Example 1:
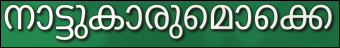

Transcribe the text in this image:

നാട്ടുകാരുമൊക്കെ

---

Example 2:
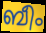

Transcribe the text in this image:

ബീം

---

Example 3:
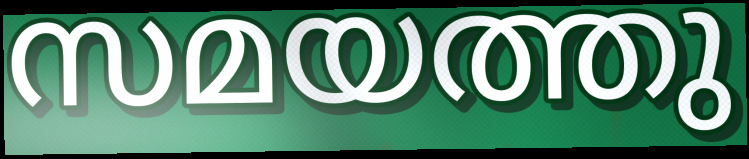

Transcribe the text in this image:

സമയത്തു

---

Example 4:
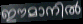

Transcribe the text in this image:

ഈമാനിൽ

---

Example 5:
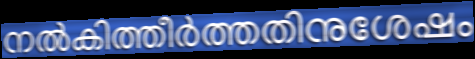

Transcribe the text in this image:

നൽകിത്തീർത്തതിനുശേഷം